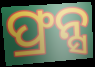
ଫ୍ରନ୍ସ